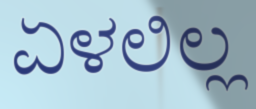
ಏಳಲಿಲ್ಲ